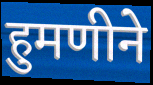
हुमणीने